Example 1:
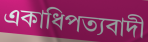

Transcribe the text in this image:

একাধিপত্যবাদী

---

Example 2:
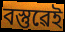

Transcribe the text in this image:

বস্তুৱেই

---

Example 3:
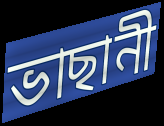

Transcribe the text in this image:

ভাছানী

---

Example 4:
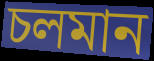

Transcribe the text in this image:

চলমান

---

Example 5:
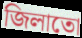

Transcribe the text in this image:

জিলাতো